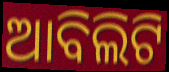
ଆବିଲିଟି